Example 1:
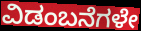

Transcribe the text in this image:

ವಿಡಂಬನೆಗಳೇ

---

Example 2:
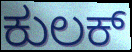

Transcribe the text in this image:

ಕುಲಕ್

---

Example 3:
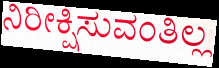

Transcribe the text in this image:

ನಿರೀಕ್ಷಿಸುವಂತಿಲ್ಲ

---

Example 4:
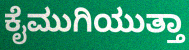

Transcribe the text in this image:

ಕೈಮುಗಿಯುತ್ತಾ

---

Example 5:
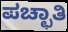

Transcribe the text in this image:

ಪಚ್ಛಾತಿ